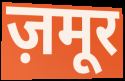
ज़मूर